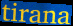
tirana